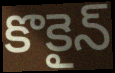
కొకైన్